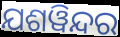
ଯଶୱିନ୍ଦର